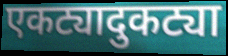
एकट्यादुकट्या